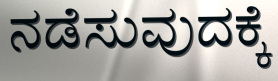
ನಡೆಸುವುದಕ್ಕೆ